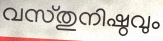
വസ്തുനിഷ്ഠവും